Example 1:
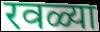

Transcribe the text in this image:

रवळ्या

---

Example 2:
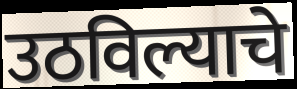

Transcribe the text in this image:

उठविल्याचे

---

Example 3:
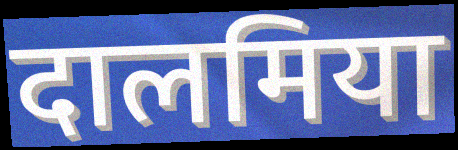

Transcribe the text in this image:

दालमिया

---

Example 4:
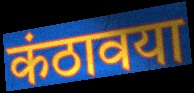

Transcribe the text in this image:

कंठावया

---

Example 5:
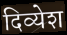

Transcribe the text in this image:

दिव्येश